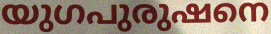
യുഗപുരുഷനെ